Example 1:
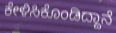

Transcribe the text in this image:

ಕೇಳಿಸಿಕೊಂಡಿದ್ದಾನೆ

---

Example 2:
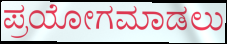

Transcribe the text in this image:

ಪ್ರಯೋಗಮಾಡಲು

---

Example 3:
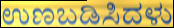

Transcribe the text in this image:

ಉಣಬಡಿಸಿದಳು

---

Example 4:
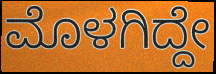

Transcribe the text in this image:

ಮೊಳಗಿದ್ದೇ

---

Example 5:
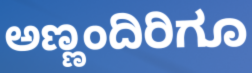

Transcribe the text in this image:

ಅಣ್ಣಂದಿರಿಗೂ